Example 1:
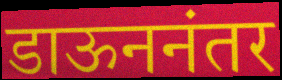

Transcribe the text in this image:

डाऊननंतर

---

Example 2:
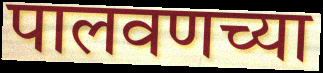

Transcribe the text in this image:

पालवणच्या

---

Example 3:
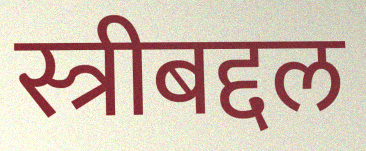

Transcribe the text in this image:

स्त्रीबद्दल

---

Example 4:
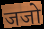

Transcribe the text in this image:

जजो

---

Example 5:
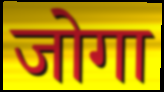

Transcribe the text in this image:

जोगा